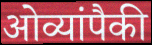
ओव्यांपैकी